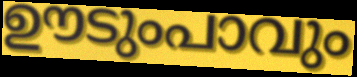
ഊടുംപാവും